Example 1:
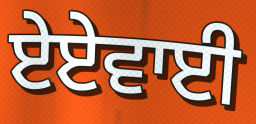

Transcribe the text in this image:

ਏਏਵਾਈ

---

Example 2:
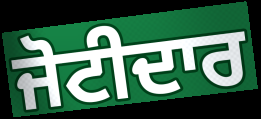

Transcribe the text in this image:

ਜੋਟੀਦਾਰ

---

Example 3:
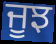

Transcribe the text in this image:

ਜੂਝ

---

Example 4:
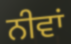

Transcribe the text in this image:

ਨੀਵਾਂ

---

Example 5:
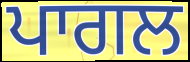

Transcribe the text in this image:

ਪਾਗਲ